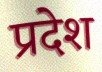
प्रदेश